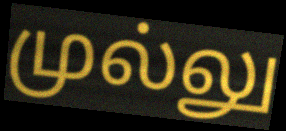
முல்லு